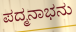
ಪದ್ಮನಾಭನು